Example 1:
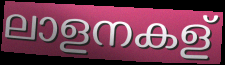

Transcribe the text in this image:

ലാളനകള്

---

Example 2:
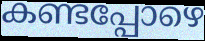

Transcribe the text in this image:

കണ്ടപ്പോഴെ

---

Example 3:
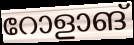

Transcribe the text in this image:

റോളാങ്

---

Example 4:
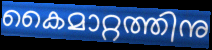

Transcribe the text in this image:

കൈമാറ്റത്തിനു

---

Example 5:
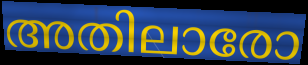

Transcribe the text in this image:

അതിലാരോ